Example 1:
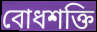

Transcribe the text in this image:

বোধশক্তি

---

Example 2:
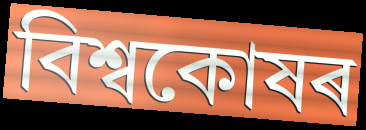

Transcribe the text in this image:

বিশ্বকোষৰ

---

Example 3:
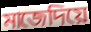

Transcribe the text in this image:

মাজেদিয়ে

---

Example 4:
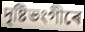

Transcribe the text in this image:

দৃষ্টিভংগীৰে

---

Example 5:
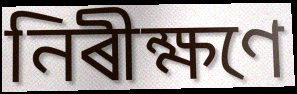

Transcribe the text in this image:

নিৰীক্ষণে